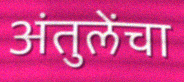
अंतुलेंचा